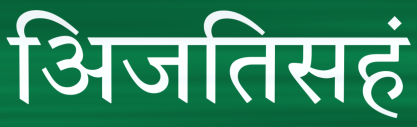
अिजतिसहं